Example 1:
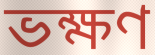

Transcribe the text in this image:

ভক্ষণ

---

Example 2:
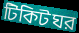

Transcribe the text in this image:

টিকিটঘর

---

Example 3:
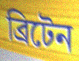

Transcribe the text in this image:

ব্রিটেন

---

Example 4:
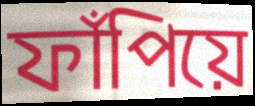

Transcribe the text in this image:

ফাঁপিয়ে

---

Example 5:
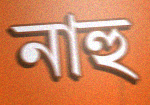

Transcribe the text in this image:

নাহু